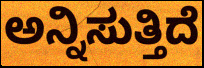
ಅನ್ನಿಸುತ್ತಿದೆ